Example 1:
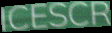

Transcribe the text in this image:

ICESCR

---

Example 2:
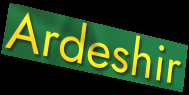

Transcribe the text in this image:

Ardeshir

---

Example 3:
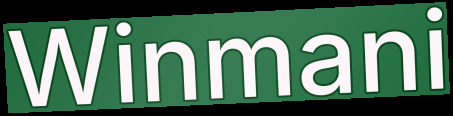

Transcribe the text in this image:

Winmani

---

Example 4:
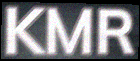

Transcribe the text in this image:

KMR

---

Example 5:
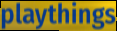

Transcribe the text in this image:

playthings